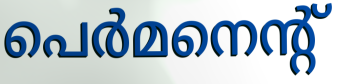
പെർമനെന്റ്